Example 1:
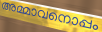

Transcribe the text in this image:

അമ്മാവനൊപ്പം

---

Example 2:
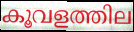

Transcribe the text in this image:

കൂവളത്തില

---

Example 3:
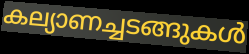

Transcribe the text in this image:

കല്യാണച്ചടങ്ങുകൾ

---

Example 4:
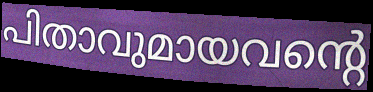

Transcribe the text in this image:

പിതാവുമായവന്റെ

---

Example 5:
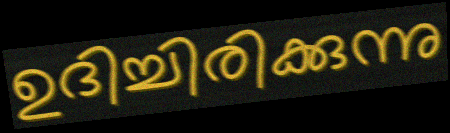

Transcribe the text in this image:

ഉദിച്ചിരിക്കുന്നു